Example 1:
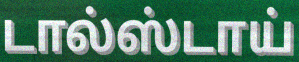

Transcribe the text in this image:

டால்ஸ்டாய்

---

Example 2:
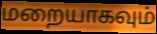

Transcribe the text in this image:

மறையாகவும்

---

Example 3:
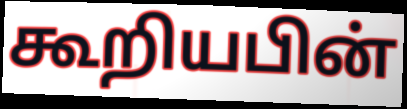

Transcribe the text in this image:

கூறியபின்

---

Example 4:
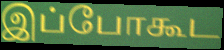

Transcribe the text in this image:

இப்போகூட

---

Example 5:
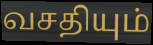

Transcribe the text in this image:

வசதியும்